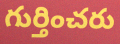
గుర్తించరు